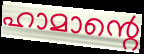
ഹാമാന്റെ